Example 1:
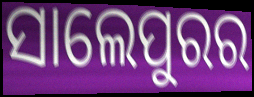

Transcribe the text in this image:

ସାଲେପୁରର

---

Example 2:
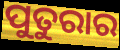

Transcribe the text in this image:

ପୁତୁରାର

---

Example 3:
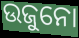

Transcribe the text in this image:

ଉଜୁନୋ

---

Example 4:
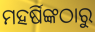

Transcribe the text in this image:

ମହର୍ଷିଙ୍କଠାରୁ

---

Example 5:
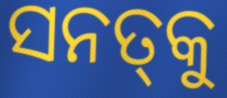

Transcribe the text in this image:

ସନତ୍‍କୁ